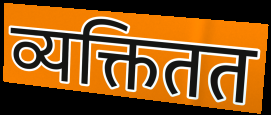
व्यक्तितत